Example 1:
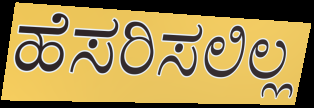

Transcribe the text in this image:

ಹೆಸರಿಸಲಿಲ್ಲ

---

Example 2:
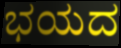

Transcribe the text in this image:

ಭಯದ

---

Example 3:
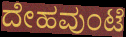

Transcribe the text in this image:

ದೇಹವುಂಟೆ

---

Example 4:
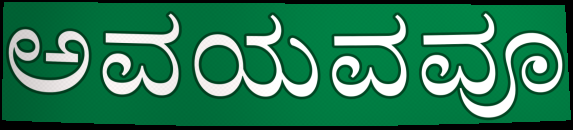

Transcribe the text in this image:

ಅವಯವವೂ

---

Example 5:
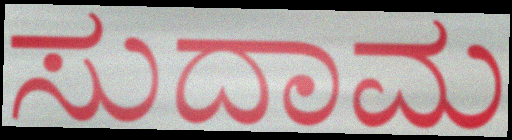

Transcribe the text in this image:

ಸುದಾಮ